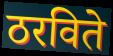
ठरविते